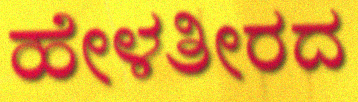
ಹೇಳತೀರದ